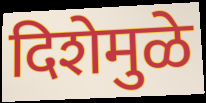
दिशेमुळे